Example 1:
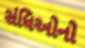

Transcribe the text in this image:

સંધિઓનો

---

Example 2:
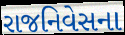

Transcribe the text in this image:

રાજનિવેસના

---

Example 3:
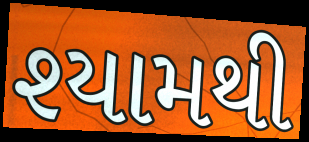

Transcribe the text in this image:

શ્યામથી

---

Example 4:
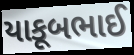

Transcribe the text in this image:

યાકૂબભાઈ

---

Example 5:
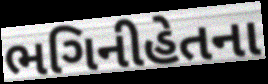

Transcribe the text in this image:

ભગિનીહેતના